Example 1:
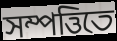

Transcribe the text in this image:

সম্পত্তিতে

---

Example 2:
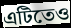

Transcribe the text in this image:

এটিতেও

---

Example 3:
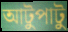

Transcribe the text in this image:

আটুপাটু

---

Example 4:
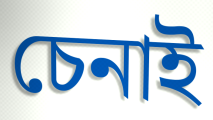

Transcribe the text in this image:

চেনাই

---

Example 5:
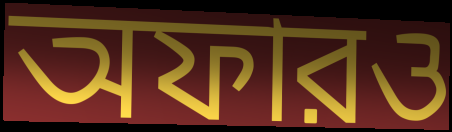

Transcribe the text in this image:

অফারও